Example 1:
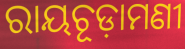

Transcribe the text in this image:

ରାୟଚୂଡ଼ାମଣୀ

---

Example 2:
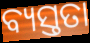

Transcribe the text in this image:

ବ୍ୟସ୍ତତା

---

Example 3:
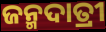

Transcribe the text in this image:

ଜନ୍ମଦାତ୍ରୀ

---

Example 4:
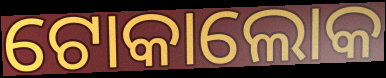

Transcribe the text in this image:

ଟୋକାଲୋକ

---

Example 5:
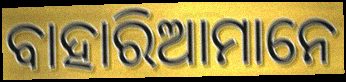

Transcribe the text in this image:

ବାହାରିଆମାନେ